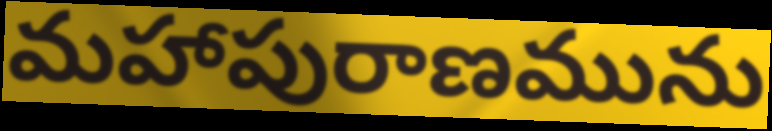
మహాపురాణమును